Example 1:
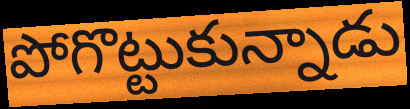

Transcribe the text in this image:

పోగొట్టుకున్నాడు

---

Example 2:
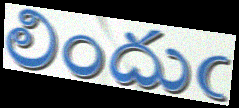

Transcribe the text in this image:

లిందుఁ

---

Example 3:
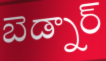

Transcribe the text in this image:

బెడ్నార్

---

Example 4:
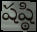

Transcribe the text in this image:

షష్ఠి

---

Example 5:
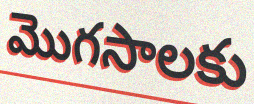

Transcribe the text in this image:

మొగసాలకు